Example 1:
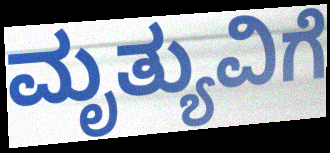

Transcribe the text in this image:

ಮೃತ್ಯುವಿಗೆ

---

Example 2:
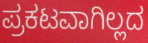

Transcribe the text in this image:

ಪ್ರಕಟವಾಗಿಲ್ಲದ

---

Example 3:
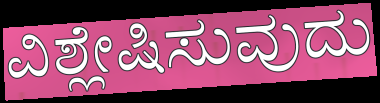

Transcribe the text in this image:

ವಿಶ್ಲೇಷಿಸುವುದು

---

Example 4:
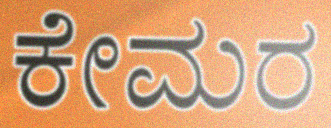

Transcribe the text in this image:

ಕೇಮರ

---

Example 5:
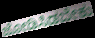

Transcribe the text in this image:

ಜೋಡಿಸಿಡಬೇಕು